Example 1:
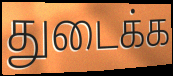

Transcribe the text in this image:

துடைக்க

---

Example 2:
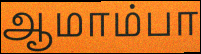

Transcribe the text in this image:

ஆமாம்பா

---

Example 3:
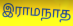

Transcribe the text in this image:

இராமநாத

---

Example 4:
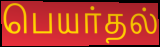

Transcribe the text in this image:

பெயர்தல்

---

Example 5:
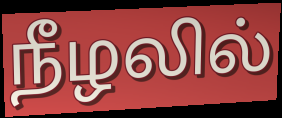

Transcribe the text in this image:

நீழலில்